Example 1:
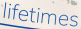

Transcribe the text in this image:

lifetimes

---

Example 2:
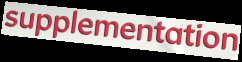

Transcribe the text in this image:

supplementation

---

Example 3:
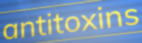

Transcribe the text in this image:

antitoxins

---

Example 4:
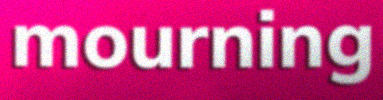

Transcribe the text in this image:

mourning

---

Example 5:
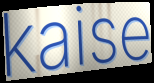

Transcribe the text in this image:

kaise